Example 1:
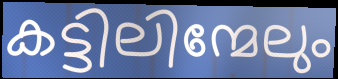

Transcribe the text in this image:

കട്ടിലിന്മേലും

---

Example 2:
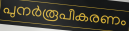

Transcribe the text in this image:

പുനർരൂപീകരണം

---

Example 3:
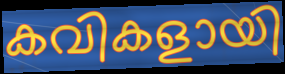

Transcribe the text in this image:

കവികളായി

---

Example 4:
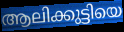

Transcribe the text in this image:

ആലിക്കുട്ടിയെ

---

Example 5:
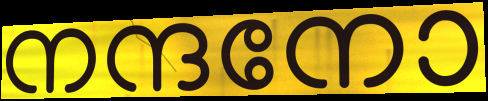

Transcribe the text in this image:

നന്ദനോ